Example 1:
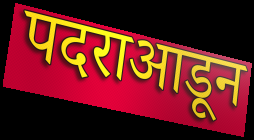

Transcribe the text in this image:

पदराआडून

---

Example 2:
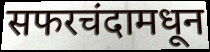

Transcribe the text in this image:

सफरचंदामधून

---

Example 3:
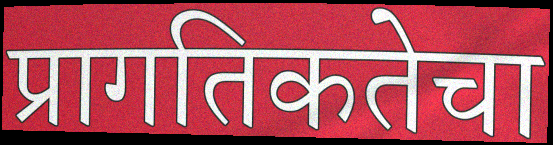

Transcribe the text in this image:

प्रागतिकतेचा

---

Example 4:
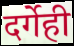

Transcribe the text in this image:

दर्गेही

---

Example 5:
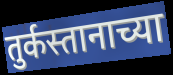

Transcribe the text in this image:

तुर्कस्तानाच्या